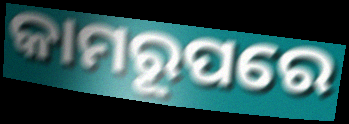
କାମରୂପରେ